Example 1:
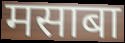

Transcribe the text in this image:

मसाबा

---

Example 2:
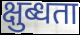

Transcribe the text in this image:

क्षुब्धता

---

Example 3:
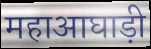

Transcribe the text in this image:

महाआघाड़ी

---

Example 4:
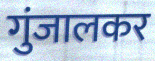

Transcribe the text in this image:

गुंजालकर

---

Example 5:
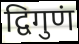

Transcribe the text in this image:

द्विगुणं